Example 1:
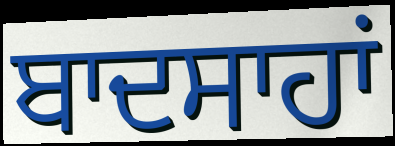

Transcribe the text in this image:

ਬਾਦਸਾਹਾਂ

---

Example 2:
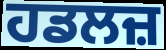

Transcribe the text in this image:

ਹਡਲਜ਼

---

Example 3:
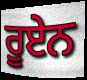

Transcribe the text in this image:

ਰੂਏਨ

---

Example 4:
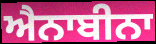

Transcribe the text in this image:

ਐਨਾਬੀਨਾ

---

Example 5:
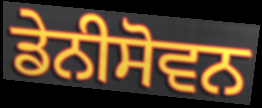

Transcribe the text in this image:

ਡੇਨੀਸੋਵਨ